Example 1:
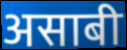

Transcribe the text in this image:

असाबी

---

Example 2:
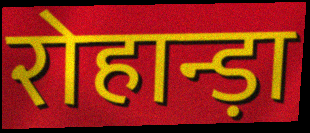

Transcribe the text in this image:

रोहान्ड़ा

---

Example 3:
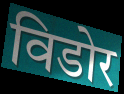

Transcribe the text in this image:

विडोर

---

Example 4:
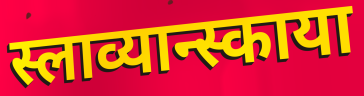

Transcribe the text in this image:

स्लाव्यान्स्काया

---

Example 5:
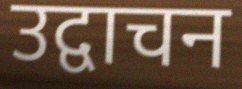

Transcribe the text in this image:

उद्वाचन